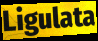
Ligulata